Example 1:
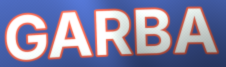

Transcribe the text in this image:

GARBA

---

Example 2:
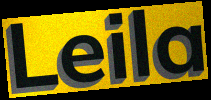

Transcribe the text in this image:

Leila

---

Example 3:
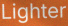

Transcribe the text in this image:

Lighter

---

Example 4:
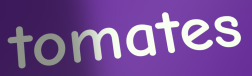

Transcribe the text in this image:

tomates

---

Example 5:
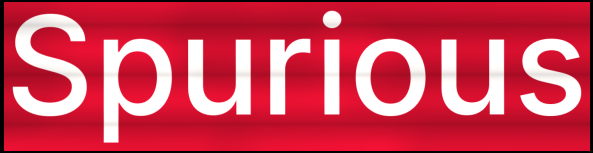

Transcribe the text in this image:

Spurious